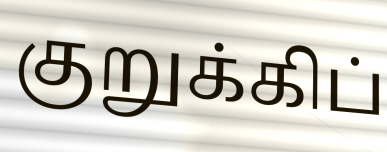
குறுக்கிப்